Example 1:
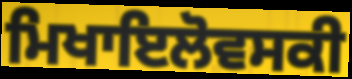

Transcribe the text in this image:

ਮਿਖਾਇਲੋਵਸਕੀ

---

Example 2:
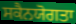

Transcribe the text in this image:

ਸਕੈਨਯੋਗਤਾ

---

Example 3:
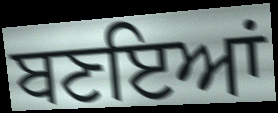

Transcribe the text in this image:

ਬਣਇਆਂ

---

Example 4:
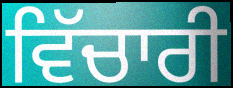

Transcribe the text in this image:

ਵਿੱਚਾਰੀ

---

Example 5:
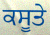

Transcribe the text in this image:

ਕਸੂਤੇ